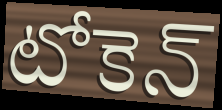
టోకెన్